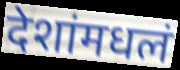
देशांमधलं